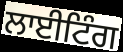
ਲਾਈਟਿੰਗ